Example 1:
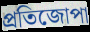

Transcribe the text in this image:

প্ৰতিজোপা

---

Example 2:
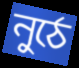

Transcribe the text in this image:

নুঠে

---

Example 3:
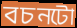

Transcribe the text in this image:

বচনটো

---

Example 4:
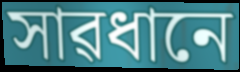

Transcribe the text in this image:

সাৱধানে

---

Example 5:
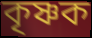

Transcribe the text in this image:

কৃষ্ণক